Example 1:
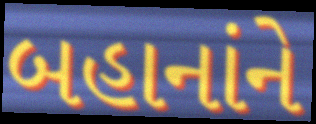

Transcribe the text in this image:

બહાનાંને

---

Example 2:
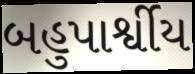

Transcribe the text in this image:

બહુપાર્શ્વીય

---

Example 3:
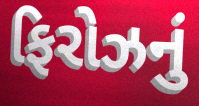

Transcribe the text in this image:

ફિરોઝનું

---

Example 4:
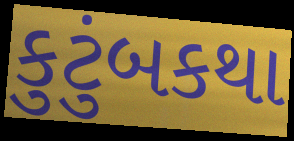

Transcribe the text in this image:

કુટુંબકથા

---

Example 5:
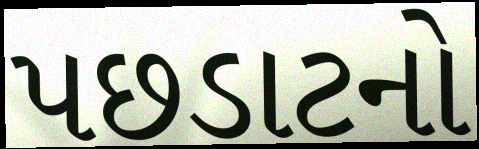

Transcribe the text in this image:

પછડાટનો